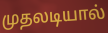
முதலடியால்